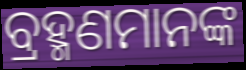
ବ୍ରହ୍ମଣମାନଙ୍କ